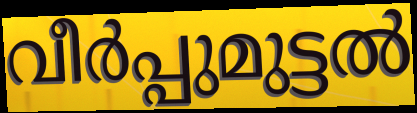
വീർപ്പുമുട്ടൽ